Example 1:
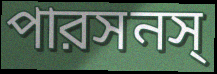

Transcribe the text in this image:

পারসনস্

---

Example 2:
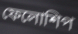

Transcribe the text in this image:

ফেলোশিপ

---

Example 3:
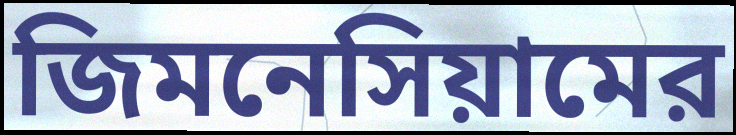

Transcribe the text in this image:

জিমনেসিয়ামের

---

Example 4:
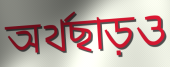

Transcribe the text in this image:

অর্থছাড়ও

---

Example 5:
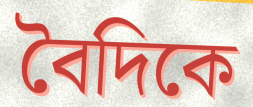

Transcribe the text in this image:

বৈদিকে